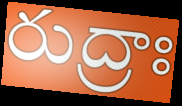
రుద్రాః